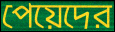
পেয়েদের